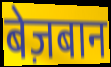
बेज़बान